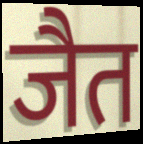
जैत